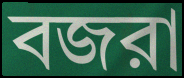
বজরা